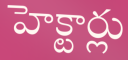
హెక్టార్లు